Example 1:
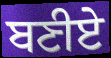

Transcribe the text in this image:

ਬਣੀਏ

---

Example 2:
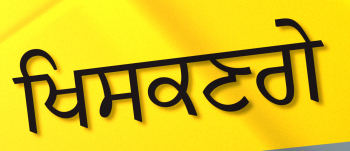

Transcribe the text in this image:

ਖਿਸਕਣਗੇ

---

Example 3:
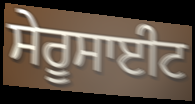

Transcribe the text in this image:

ਸੇਰੂਸਾਈਟ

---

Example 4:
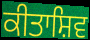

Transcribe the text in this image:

ਕੀਤਾਸ਼ਿਵ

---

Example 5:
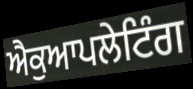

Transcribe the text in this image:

ਐਕੁਆਪਲੇਟਿੰਗ